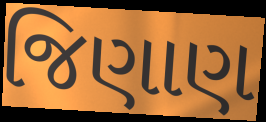
જિણાણ